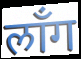
लाँग